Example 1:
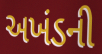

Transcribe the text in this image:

અખંડની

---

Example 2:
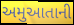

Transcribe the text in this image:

અમુઆતાની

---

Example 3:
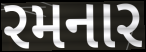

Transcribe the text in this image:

રમનાર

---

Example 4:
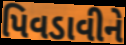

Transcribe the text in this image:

પિવડાવીને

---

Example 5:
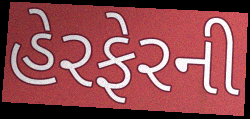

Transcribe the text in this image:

હેરફેરની